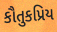
કૌતુકપ્રિય